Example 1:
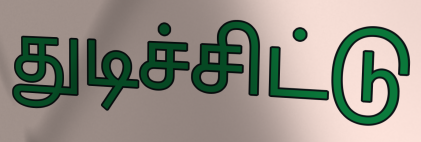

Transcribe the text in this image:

துடிச்சிட்டு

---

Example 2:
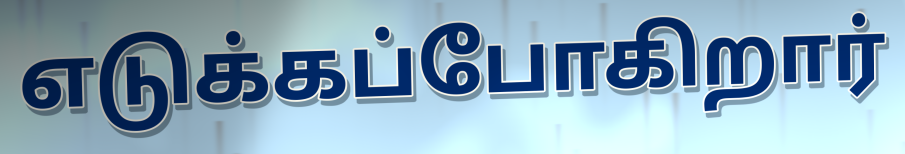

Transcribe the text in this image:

எடுக்கப்போகிறார்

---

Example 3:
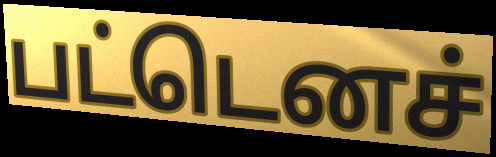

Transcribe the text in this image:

பட்டெனச்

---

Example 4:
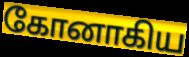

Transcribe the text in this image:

கோனாகிய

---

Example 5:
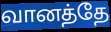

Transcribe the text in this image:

வானத்தே